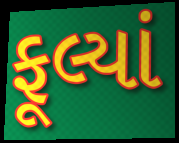
ફૂલ્યાં